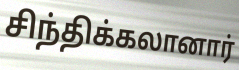
சிந்திக்கலானார்